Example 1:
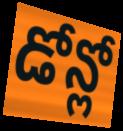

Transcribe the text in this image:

డోన్లో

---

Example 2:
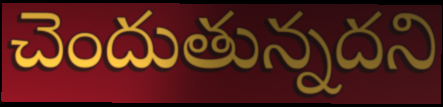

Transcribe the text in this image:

చెందుతున్నదని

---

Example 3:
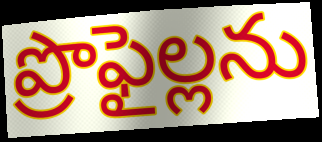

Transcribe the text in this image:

ప్రొఫైల్లను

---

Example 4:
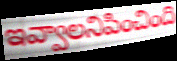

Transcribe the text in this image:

ఇవ్వాలనిపించింది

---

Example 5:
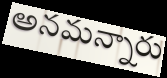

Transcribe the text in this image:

అనమన్నారు